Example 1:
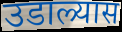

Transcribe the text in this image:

उडाल्यास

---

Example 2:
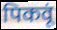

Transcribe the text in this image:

पिकवूं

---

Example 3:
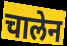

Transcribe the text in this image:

चालेन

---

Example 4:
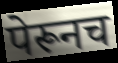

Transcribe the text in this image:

पेरूनच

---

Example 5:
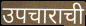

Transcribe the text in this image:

उपचाराची